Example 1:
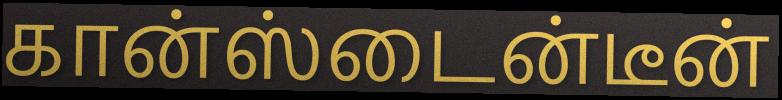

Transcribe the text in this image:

கான்ஸ்டைன்டீன்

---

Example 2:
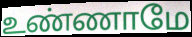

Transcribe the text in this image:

உண்ணாமே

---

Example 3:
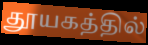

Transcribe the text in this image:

தூயகத்தில்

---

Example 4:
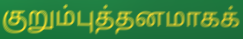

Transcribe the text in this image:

குறும்புத்தனமாகக்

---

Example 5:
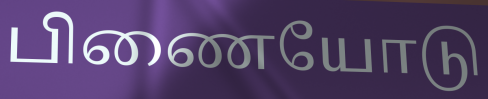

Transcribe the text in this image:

பிணையோடு